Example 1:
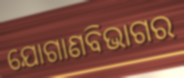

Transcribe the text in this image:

ଯୋଗାଣବିଭାଗର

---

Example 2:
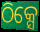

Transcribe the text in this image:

ଠିକ୍ସେ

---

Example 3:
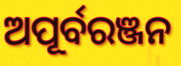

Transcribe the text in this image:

ଅପୂର୍ବରଞ୍ଜନ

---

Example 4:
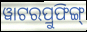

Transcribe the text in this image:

ୱାଟରପ୍ରୁଫିଙ୍ଗ୍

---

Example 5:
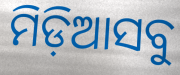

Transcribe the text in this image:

ମିଡ଼ିଆସବୁ